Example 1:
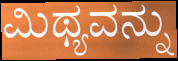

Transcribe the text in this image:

ಮಿಥ್ಯವನ್ನು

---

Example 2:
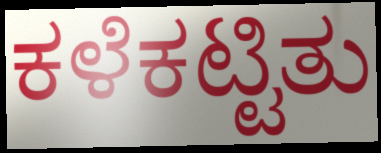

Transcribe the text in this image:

ಕಳೆಕಟ್ಟಿತು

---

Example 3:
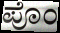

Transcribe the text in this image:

ಪೊಂ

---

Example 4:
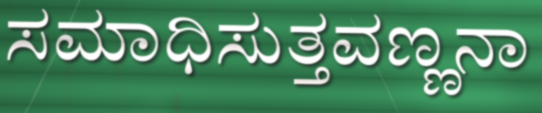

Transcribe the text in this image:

ಸಮಾಧಿಸುತ್ತವಣ್ಣನಾ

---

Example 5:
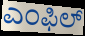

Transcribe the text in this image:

ಎಂಫಿಲ್